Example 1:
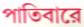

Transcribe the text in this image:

পাতিবারে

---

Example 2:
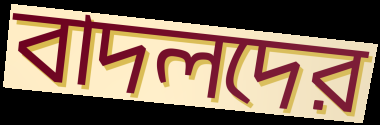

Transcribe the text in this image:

বাদলদের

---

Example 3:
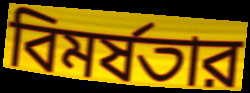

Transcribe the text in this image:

বিমর্ষতার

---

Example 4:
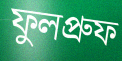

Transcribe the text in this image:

ফুলপ্রুফ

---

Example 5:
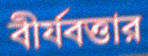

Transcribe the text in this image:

বীর্যবত্তার